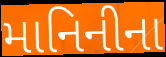
માનિનીના